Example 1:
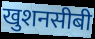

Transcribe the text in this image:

खुशनसीबी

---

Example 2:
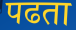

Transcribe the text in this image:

पढता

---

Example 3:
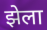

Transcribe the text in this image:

झेला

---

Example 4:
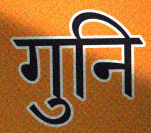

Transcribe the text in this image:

गुनि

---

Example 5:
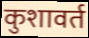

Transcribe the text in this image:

कुशावर्त